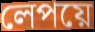
লেপয়ে